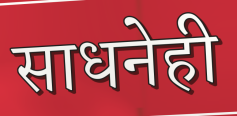
साधनेही